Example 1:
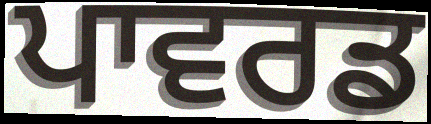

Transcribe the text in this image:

ਪਾਵਰਡ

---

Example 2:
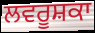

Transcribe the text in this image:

ਲਵਰੂਸ਼ਕਾ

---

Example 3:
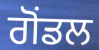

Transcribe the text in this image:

ਗੋਂਡਲ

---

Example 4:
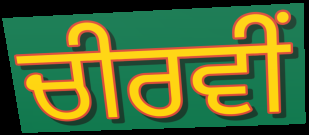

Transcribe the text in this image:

ਚੀਰਵੀਂ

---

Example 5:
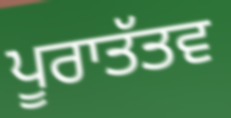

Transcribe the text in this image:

ਪੂਰਾਤੱਤਵ